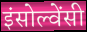
इंसोल्वेंसी